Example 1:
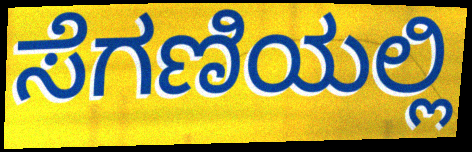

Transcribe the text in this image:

ಸೆಗಣಿಯಲ್ಲಿ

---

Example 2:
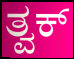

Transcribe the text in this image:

ತ್ವಕ್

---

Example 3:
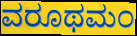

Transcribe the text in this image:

ವರೂಥಮಂ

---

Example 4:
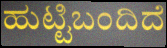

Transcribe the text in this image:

ಹುಟ್ಟಿಬಂದಿದೆ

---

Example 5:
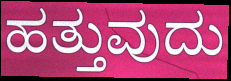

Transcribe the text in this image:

ಹತ್ತುವುದು